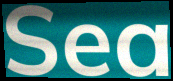
Sea